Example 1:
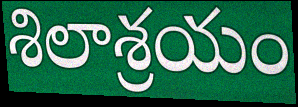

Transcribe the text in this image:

శిలాశ్రయం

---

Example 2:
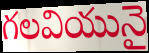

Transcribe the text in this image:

గలవియునై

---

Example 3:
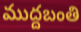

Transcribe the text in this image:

ముద్దబంతి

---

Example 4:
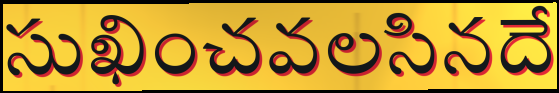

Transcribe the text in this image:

సుఖించవలసినదే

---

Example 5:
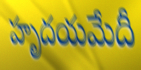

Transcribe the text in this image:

హృదయమేదీ